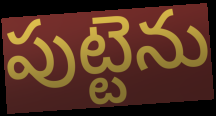
పుట్టెను